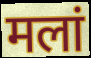
मलां